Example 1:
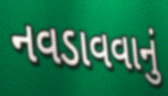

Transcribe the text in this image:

નવડાવવાનું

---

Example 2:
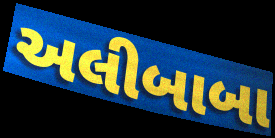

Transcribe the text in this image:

અલીબાબા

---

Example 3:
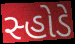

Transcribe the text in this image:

સ્હોડે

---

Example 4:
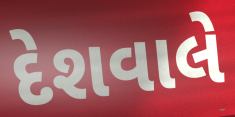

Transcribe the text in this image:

દેશવાલે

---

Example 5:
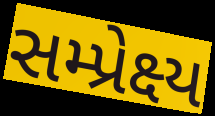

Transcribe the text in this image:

સમ્પ્રેક્ષ્ય